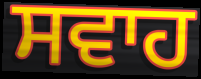
ਸਵਾਹ